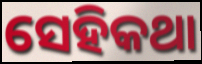
ସେହିକଥା